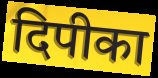
दिपीका